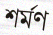
শর্মণ